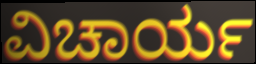
ವಿಚಾರ್ಯ